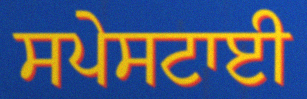
ਸਪੇਸਟਾਈ